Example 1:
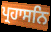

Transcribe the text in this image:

ਪ੍ਰਹਾਸਨਿ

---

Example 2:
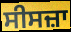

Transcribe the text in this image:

ਸੀਸਜ਼ਾ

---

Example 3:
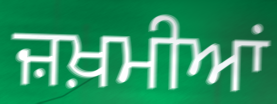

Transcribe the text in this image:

ਜ਼ਖ਼ਮੀਆਂ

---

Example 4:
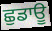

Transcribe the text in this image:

ਛੁਡਾਊ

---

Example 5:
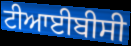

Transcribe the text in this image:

ਟੀਆਈਬੀਸੀ